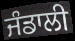
ਜੰਡਾਲੀ